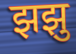
झझु